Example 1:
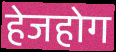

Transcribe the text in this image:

हेजहोग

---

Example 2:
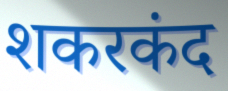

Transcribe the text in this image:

शकरकंद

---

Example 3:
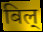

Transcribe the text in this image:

बिल्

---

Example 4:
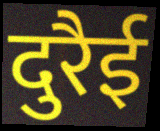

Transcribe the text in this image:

दुरैई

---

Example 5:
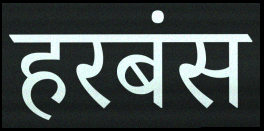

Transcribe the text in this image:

हरबंस